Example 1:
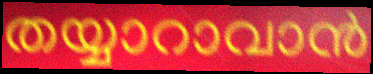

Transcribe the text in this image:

തയ്യാറാവാൻ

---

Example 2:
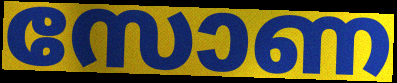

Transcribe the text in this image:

സോണ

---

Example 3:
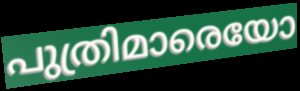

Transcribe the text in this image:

പുത്രിമാരെയോ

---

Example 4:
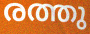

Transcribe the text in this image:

രത്തു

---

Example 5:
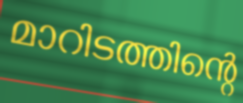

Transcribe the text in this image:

മാറിടത്തിന്റെ